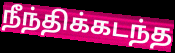
நீந்திக்கடந்த